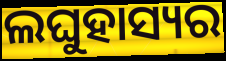
ଲଘୁହାସ୍ୟର